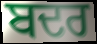
ਬਦਰ